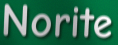
Norite